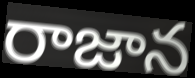
రాజాన